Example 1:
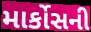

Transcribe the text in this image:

માર્કોસની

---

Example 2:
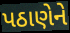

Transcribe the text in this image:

પઠાણેને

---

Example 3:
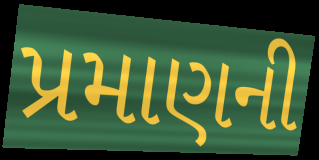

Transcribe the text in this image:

પ્રમાણની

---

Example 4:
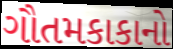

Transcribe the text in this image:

ગૌતમકાકાનો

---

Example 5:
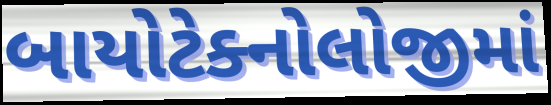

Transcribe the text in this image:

બાયોટેક્નોલોજીમાં